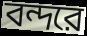
বন্দরে